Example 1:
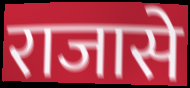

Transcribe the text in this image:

राजासे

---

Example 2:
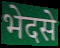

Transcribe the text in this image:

भेदसे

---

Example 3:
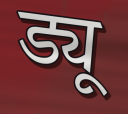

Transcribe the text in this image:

ड्यू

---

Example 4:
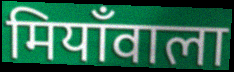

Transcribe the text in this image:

मियाँवाला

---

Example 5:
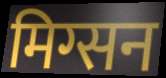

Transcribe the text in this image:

मिग्सन